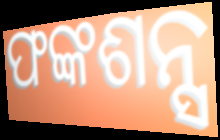
ଫଙ୍କଶନ୍ସ